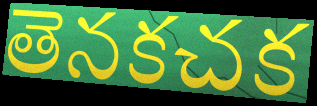
తెనకచక